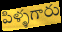
పిళ్ళగారు